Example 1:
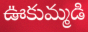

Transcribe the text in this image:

ఊకుమ్మడి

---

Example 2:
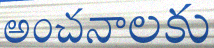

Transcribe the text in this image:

అంచనాలకు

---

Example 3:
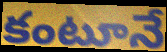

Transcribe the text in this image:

కంటూనే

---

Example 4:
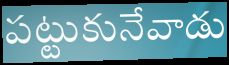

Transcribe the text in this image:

పట్టుకునేవాడు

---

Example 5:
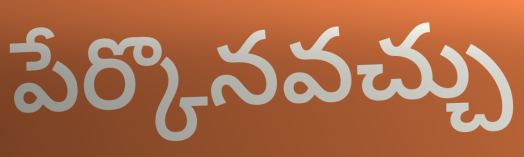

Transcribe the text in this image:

పేర్కొనవచ్చు